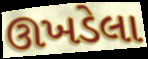
ઊખડેલા